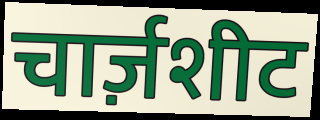
चार्ज़शीट